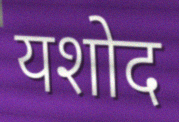
यशोद